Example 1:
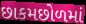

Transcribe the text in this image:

છાકમછોળમાં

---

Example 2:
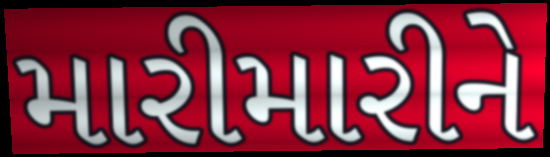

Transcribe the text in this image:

મારીમારીને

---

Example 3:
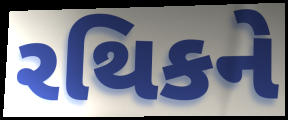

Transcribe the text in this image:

રથિકને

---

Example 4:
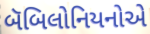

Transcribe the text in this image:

બૅબિલોનિયનોએ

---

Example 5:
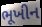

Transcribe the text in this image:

ભૂખીન